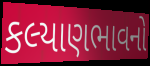
કલ્યાણભાવનો